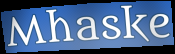
Mhaske